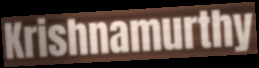
Krishnamurthy